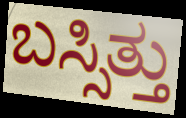
ಬಸ್ಸಿತ್ತು